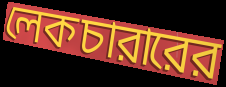
লেকচারারের